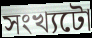
সংখ্যটো